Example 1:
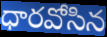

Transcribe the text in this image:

ధారవోసిన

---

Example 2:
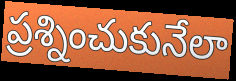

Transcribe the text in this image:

ప్రశ్నించుకునేలా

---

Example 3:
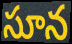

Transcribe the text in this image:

సూన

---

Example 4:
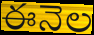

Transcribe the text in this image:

ఈనెల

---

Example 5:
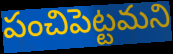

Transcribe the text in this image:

పంచిపెట్టమని